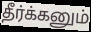
தீர்க்கனும்